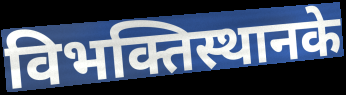
विभक्तिस्थानके